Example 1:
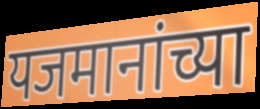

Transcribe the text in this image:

यजमानांच्या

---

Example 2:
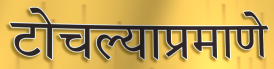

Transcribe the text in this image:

टोचल्याप्रमाणे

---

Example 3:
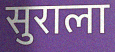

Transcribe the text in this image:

सुराला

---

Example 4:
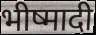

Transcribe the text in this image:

भीष्मादी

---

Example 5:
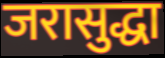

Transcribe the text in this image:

जरासुद्धा